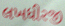
લખધીરજી